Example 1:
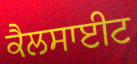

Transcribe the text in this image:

ਕੈਲਸਾਈਟ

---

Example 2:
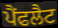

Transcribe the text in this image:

ਪੈਂਫਲੈਟ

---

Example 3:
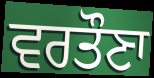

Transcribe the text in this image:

ਵਰਤੌਣਾ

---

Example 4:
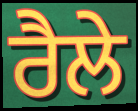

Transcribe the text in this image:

ਰੈਲੇ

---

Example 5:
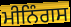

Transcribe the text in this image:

ਮੀਨਿੰਗਸ